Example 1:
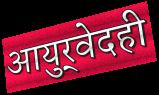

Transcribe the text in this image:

आयुर्वेदही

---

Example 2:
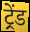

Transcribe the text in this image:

ट्रेंड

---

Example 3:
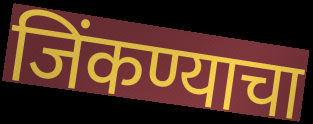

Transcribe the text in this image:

जिंकण्याचा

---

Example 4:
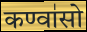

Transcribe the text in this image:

कण्वा॑सो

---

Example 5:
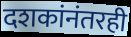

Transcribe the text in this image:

दशकांनंतरही